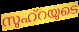
സുഹ്റയുടെ